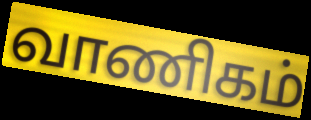
வாணிகம்